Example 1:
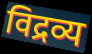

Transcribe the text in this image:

विद्रव्य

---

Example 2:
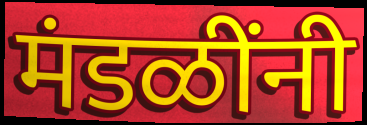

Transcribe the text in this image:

मंडळींनी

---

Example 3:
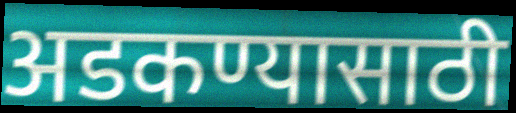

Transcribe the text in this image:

अडकण्यासाठी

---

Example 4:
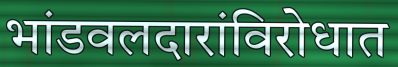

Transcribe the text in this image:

भांडवलदारांविरोधात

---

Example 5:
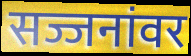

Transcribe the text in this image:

सज्जनांवर